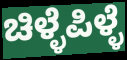
ಚಿಳ್ಳೆಪಿಳ್ಳೆ